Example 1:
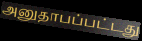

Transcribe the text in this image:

அனுதாபப்பட்டது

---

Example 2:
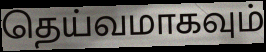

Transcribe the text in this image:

தெய்வமாகவும்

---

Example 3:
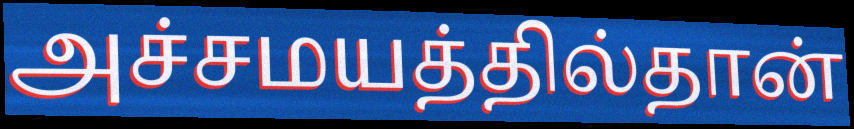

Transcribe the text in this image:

அச்சமயத்தில்தான்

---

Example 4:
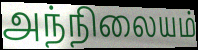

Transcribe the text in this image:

அந்நிலையம்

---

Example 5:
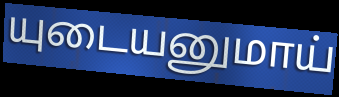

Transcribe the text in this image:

யுடையனுமாய்